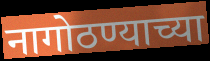
नागोठण्याच्या